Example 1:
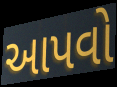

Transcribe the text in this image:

આપવો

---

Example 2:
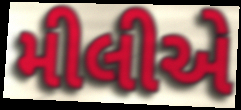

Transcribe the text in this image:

મીલીએ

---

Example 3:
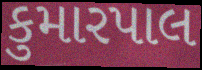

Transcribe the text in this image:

કુમારપાલ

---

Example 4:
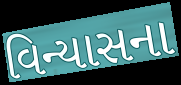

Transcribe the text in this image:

વિન્યાસના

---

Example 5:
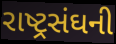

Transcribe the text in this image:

રાષ્ટ્રસંઘની